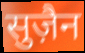
सुज़ैन